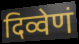
दिव्वेणं